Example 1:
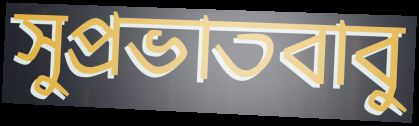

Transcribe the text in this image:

সুপ্রভাতবাবু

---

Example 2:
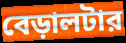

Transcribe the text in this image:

বেড়ালটার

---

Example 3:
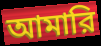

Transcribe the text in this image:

আমারি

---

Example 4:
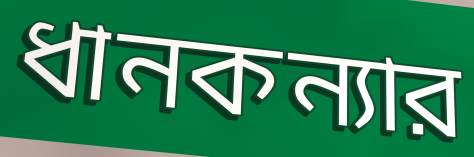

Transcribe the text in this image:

ধানকন্যার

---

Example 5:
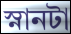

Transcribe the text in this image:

স্নানটা